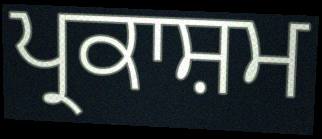
ਪ੍ਰਕਾਸ਼ਮ